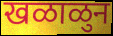
खळाळुन